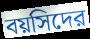
বয়সিদের